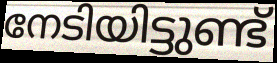
നേടിയിട്ടുണ്ട്